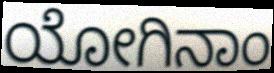
ಯೋಗಿನಾಂ